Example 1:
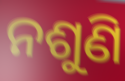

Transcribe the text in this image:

ନଶୁଣି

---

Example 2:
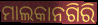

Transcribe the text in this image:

ମାଲକାନଗିରି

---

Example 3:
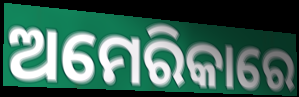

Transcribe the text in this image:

ଅମେରିକାରେ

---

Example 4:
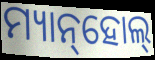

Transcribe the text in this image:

ମ୍ୟାନ୍‌ହୋଲ୍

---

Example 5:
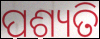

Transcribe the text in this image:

ପଶ୍ୟତି